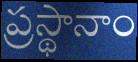
ప్రస్థానాం